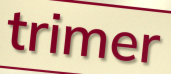
trimer